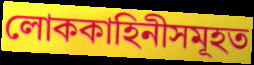
লোককাহিনীসমূহত